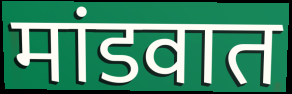
मांडवात